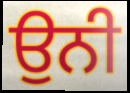
ਉਨੀ